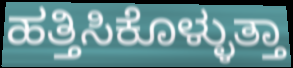
ಹತ್ತಿಸಿಕೊಳ್ಳುತ್ತಾ